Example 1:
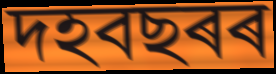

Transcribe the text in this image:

দহবছৰৰ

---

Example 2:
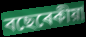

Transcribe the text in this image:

বছেৰেকীয়া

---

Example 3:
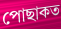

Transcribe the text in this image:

পোছাকত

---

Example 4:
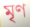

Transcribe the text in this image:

মৃণ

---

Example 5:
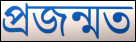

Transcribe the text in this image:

প্ৰজন্মত